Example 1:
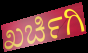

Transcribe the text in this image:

ಖರ್ಚಿಗಿ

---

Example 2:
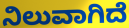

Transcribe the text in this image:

ನಿಲುವಾಗಿದೆ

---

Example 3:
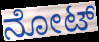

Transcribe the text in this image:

ನೋಟ್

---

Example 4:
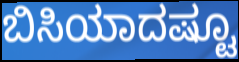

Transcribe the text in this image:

ಬಿಸಿಯಾದಷ್ಟೂ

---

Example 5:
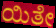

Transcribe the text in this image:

ಯಿತೇ